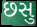
છસુ